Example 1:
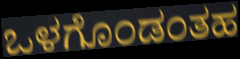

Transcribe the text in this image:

ಒಳಗೊಂಡಂತಹ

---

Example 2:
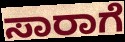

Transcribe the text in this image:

ಸಾರಾಗೆ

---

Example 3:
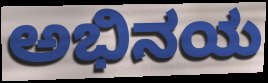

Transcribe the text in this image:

ಅಭಿನಯ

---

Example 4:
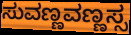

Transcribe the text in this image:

ಸುವಣ್ಣವಣ್ಣಸ್ಸ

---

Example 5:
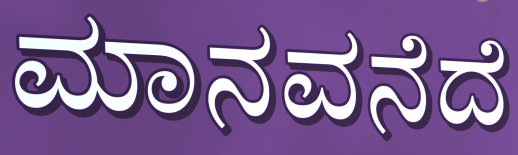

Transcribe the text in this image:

ಮಾನವನೆದೆ